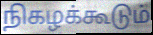
நிகழக்கூடும்